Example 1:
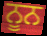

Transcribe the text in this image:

ਨੂਨ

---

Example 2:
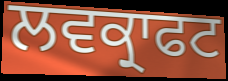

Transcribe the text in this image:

ਲਵਕ੍ਰਾਫਟ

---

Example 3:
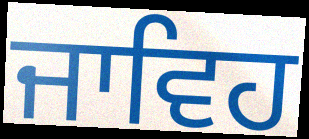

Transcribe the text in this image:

ਜਾਵਿਹ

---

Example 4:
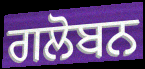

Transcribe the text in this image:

ਗਲੋਬਨ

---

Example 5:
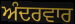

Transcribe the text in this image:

ਅੰਦਰਵਾਰ